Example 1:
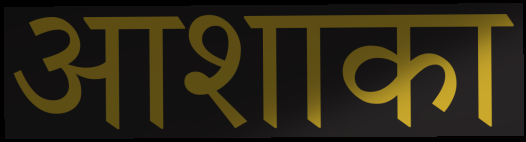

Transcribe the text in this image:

आशाका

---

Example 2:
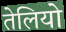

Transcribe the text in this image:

तेलियो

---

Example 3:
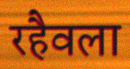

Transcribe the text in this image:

रहैवला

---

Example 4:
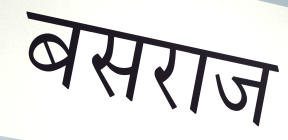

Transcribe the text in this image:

बसराज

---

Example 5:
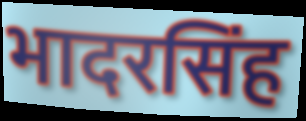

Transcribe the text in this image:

भादरसिंह